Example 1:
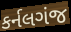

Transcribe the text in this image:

કર્નલગંજ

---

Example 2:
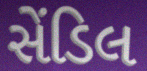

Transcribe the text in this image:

સેંડિલ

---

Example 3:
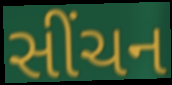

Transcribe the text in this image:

સીંચન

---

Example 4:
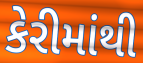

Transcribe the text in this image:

કેરીમાંથી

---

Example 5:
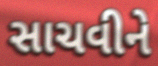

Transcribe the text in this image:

સાચવીને